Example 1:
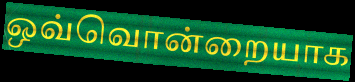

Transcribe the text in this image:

ஒவ்வொன்றையாக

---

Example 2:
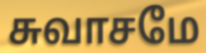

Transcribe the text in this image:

சுவாசமே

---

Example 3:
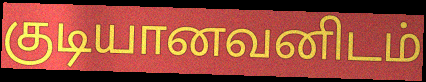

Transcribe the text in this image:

குடியானவனிடம்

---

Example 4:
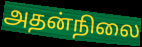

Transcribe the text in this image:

அதன்நிலை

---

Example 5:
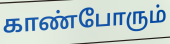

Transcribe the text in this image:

காண்போரும்